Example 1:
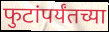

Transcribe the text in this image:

फुटांपर्यंतच्या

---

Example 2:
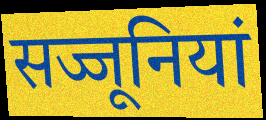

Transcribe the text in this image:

सज्जूनियां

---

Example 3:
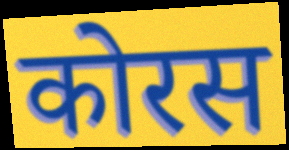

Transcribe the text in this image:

कोरस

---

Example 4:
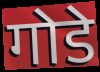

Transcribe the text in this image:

गोडे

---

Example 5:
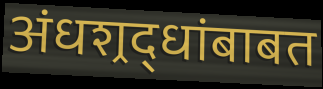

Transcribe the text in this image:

अंधश्रद्धांबाबत